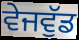
ਵੇਜਵੁੱਡ